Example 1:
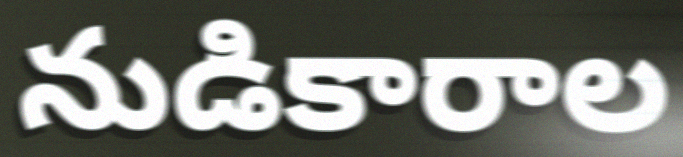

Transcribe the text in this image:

నుడికారాల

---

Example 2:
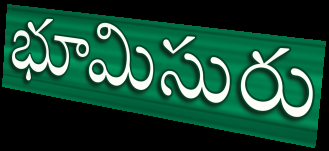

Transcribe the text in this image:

భూమిసురు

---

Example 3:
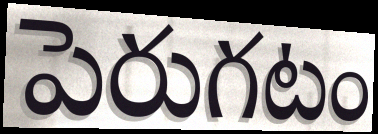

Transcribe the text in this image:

పెరుగటం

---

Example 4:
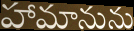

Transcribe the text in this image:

హామానును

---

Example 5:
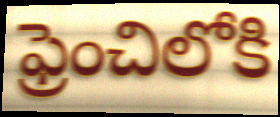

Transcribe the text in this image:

ఫ్రెంచిలోకి